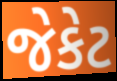
જેકેટ